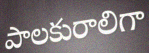
పాలకురాలిగా